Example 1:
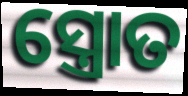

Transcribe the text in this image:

ସ୍ତ୍ରୋତ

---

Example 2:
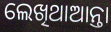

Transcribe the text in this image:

ଲେଖିଥାଆନ୍ତା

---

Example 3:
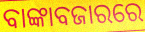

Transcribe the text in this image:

ବାଙ୍କାବଜାରରେ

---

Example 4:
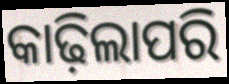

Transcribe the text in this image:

କାଢ଼ିଲାପରି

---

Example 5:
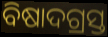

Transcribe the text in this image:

ବିଷାଦଗ୍ରସ୍ତ